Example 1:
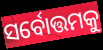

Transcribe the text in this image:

ସର୍ବୋତ୍ତମକୁ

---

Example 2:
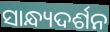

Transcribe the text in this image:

ସାନ୍ଧ୍ୟଦର୍ଶନ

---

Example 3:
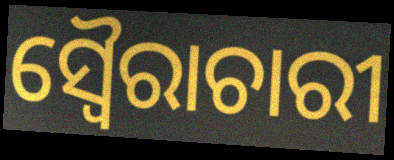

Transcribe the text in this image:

ସ୍ୱୈରାଚାରୀ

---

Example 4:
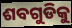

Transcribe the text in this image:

ଶବଗୁଡିକୁ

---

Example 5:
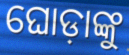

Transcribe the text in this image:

ଘୋଡ଼ାଙ୍କୁ